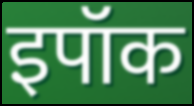
इपॉक